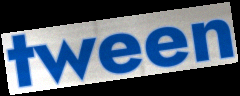
tween